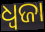
ଧ୍ୱଜା